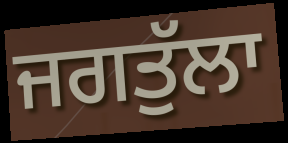
ਜਗਤੁੱਲਾ